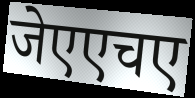
जेएएचए